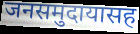
जनसमुदायासह